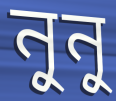
নুনু